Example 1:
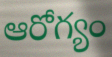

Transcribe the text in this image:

ఆరోగ్యం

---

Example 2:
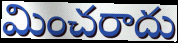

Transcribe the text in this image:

మించరాదు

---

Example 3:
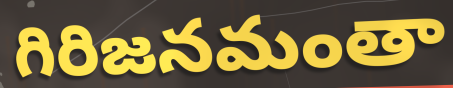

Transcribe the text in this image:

గిరిజనమంతా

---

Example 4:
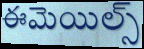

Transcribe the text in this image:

ఈమెయిల్స్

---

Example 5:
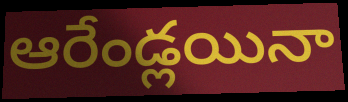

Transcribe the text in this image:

ఆరేండ్లయినా